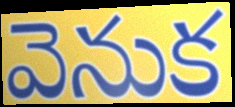
వెనుక